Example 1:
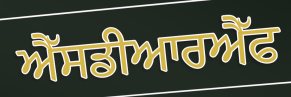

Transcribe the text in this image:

ਐੱਸਡੀਆਰਐੱਫ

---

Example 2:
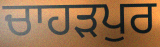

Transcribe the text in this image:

ਚਾਹਡ਼ਪੁਰ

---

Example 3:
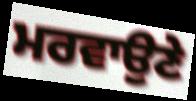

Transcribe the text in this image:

ਮਰਵਾਉਣੇ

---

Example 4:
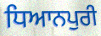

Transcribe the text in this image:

ਧਿਆਨਪੁਰੀ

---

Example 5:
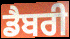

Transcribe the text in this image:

ਡੈਬਰੀ